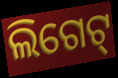
ଲିଗେଟ୍